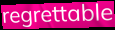
regrettable